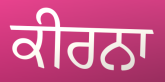
ਕੀਰਨਾ